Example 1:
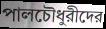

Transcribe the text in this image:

পালচৌধুরীদের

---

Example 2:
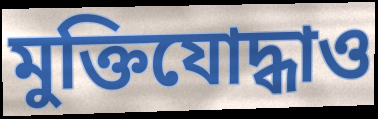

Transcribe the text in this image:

মুক্তিযোদ্ধাও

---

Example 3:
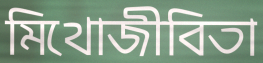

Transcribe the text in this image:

মিথোজীবিতা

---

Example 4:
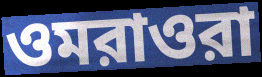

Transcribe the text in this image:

ওমরাওরা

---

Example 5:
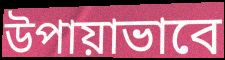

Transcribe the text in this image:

উপায়াভাবে